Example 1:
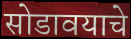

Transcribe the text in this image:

सोडावयाचे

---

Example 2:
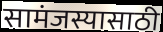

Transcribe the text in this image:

सामंजस्यासाठी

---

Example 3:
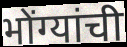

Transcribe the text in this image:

भोंग्यांची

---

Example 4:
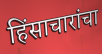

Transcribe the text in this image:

हिंसाचारांचा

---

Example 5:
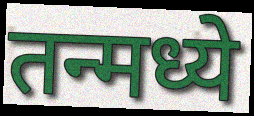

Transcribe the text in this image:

तन्मध्ये